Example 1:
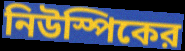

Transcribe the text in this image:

নিউস্পিকের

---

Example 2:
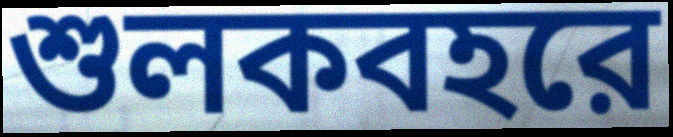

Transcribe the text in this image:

শুলকবহরে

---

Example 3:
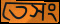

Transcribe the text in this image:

তেসং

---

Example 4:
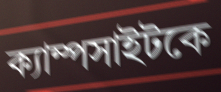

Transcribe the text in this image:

ক্যাম্পসাইটকে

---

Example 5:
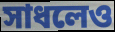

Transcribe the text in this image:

সাধলেও